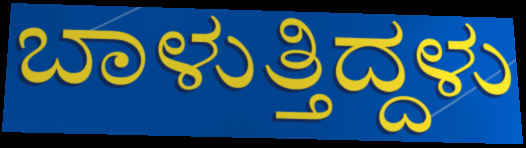
ಬಾಳುತ್ತಿದ್ದಳು